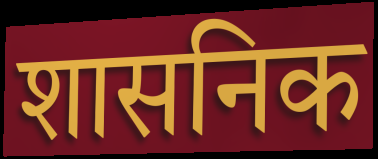
शासनिक